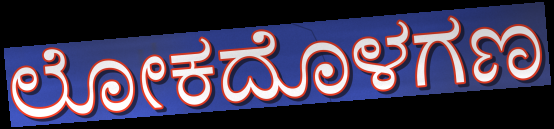
ಲೋಕದೊಳಗಣ